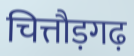
चित्तौड़गढ़